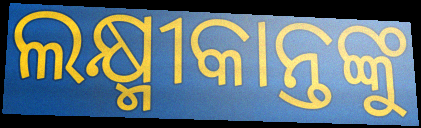
ଲକ୍ଷ୍ମୀକାନ୍ତଙ୍କୁ